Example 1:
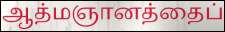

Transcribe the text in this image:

ஆத்மஞானத்தைப்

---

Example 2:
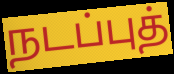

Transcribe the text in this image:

நடப்புத்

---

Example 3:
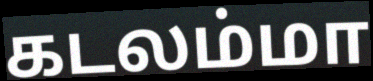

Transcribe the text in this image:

கடலம்மா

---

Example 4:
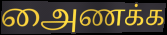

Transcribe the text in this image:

அைணக்க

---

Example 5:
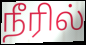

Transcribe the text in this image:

நீரில்